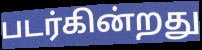
படர்கின்றது